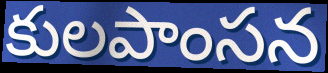
కులపాంసన